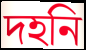
দহনি